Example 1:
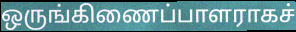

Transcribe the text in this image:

ஒருங்கிணைப்பாளராகச்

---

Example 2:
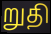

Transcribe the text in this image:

றுதி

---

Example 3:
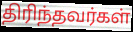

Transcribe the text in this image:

திரிந்தவர்கள்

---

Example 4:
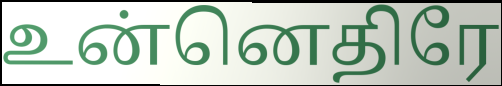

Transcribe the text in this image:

உன்னெதிரே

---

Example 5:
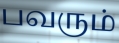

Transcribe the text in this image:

பவரும்